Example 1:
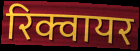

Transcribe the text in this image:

रिक्वायर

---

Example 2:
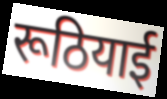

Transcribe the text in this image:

रूठियाई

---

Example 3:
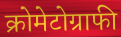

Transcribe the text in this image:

क्रोमेटोग्राफी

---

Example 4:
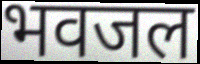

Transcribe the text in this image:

भवजल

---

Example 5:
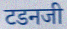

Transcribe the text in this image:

टडनजी